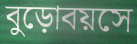
বুড়োবয়সে